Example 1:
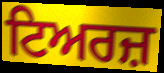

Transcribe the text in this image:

ਟਿਅਰਜ਼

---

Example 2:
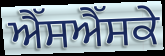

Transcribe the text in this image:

ਐੱਸਐੱਸਕੇ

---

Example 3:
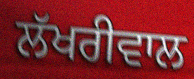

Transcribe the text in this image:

ਲੱਖਰੀਵਾਲ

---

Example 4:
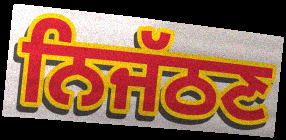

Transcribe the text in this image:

ਨਿਜੱਠਣ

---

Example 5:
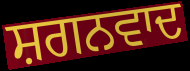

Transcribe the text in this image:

ਸ਼ਗਨਵਾਦ